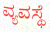
ವ್ಯವಸ್ಥೆ